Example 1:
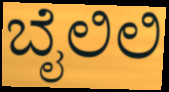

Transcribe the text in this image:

ಬೈಲಿಲಿ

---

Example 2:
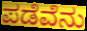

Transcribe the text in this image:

ಪಡೆವೆನು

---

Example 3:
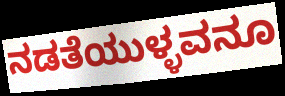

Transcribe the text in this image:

ನಡತೆಯುಳ್ಳವನೂ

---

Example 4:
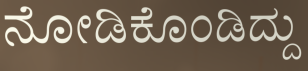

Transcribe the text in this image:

ನೋಡಿಕೊಂಡಿದ್ದು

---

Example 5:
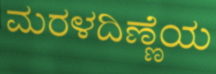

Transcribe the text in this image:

ಮರಳದಿಣ್ಣೆಯ